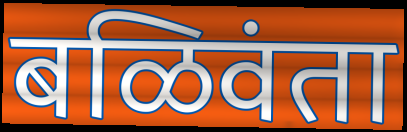
बळिवंता